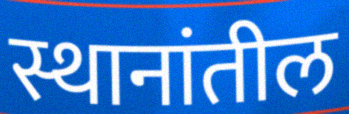
स्थानांतील